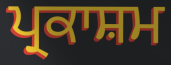
ਪ੍ਰਕਾਸ਼ਮ